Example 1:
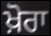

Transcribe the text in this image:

ਖ਼ੋਰਾ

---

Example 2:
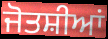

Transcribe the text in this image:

ਜੋਤਸ਼ੀਆਂ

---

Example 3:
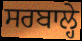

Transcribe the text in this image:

ਸਰਬਾਲ੍ਹੇ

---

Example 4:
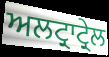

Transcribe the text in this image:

ਅਲਟ੍ਰਾਟ੍ਰੇਲ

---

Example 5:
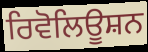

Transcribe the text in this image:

ਰਿਵੋਲਿਊਸ਼ਨ